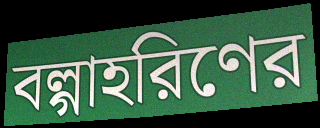
বল্গাহরিণের